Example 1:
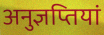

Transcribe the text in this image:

अनुज्ञप्तियां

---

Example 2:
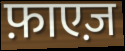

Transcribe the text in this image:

फ़ाएज़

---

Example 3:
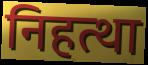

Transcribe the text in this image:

निहत्था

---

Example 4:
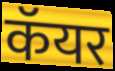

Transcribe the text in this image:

कॅयर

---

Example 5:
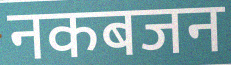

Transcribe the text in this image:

नकबजन